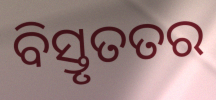
ବିସ୍ତୃତତର